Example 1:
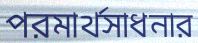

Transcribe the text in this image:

পরমার্থসাধনার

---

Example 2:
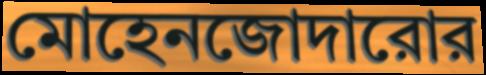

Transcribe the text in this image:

মোহেনজোদারোর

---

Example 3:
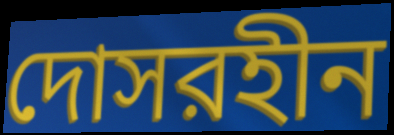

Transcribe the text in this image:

দোসরহীন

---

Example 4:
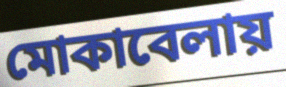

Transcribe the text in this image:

মোকাবেলায়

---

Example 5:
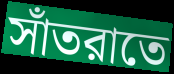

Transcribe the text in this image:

সাঁতরাতে